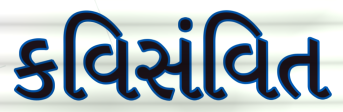
કવિસંવિત